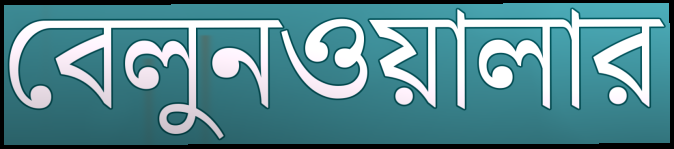
বেলুনওয়ালার